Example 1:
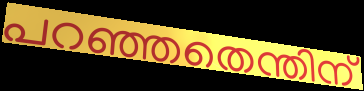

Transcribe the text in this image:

പറഞ്ഞതെന്തിന്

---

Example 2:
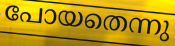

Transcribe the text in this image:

പോയതെന്നു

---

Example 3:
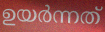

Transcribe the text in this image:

ഉയർന്നത്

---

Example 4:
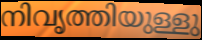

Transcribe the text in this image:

നിവൃത്തിയുള്ളു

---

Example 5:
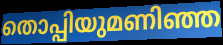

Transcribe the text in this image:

തൊപ്പിയുമണിഞ്ഞ